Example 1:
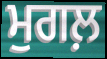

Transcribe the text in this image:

ਮੁਗਲ਼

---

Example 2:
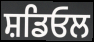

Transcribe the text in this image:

ਸ਼ਡਿਓਲ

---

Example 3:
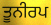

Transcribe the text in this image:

ਤੂਨੀਰਪ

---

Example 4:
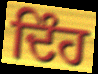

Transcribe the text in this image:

ਦਿੰਹ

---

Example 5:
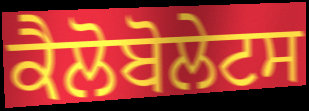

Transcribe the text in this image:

ਕੈਲੋਬੋਲੇਟਸ